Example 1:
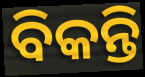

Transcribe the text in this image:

ବିକନ୍ତି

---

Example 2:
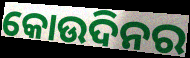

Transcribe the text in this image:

କୋଉଦିନର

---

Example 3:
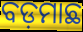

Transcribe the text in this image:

ବଡ଼ମାଛ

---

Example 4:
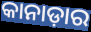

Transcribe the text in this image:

କାନାଡ଼ାର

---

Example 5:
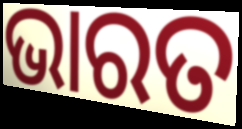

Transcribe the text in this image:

ଭାରତ